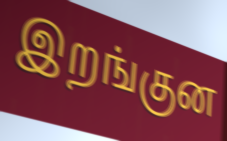
இறங்குன